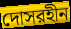
দোসরহীন